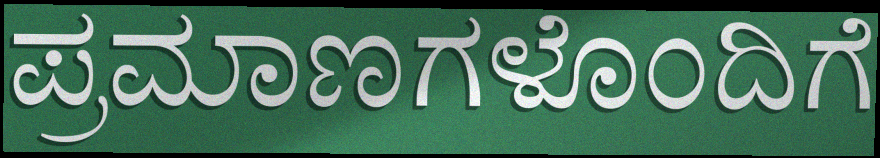
ಪ್ರಮಾಣಗಳೊಂದಿಗೆ